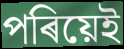
পৰিয়েই